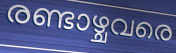
രണ്ടാഴ്ചവരെ